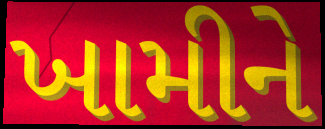
ખામીને